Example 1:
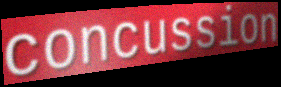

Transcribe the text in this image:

concussion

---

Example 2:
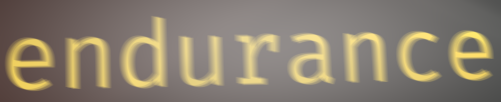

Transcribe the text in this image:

endurance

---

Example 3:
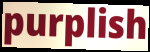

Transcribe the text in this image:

purplish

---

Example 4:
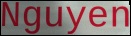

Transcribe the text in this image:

Nguyen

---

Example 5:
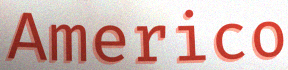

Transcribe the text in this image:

Americo